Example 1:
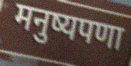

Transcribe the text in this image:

मनुष्यपणा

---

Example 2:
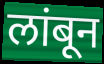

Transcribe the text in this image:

लांबून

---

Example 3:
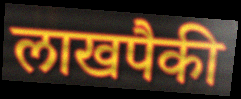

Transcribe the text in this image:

लाखपैकी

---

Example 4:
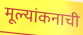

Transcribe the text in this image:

मूल्यांकनाची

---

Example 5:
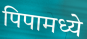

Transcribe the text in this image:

पिपामध्ये